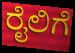
ರೈಲಿಗೆ